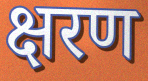
क्षरण